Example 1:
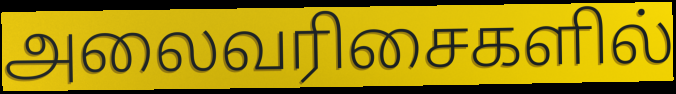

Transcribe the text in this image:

அலைவரிசைகளில்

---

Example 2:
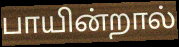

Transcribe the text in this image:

பாயின்றால்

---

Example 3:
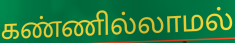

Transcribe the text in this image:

கண்ணில்லாமல்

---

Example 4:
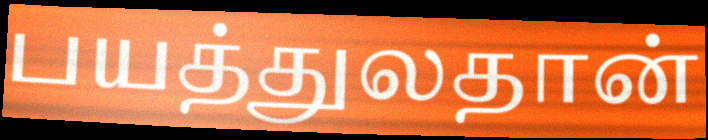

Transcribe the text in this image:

பயத்துலதான்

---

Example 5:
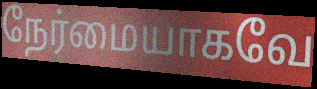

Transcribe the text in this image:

நேர்மையாகவே